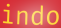
indo